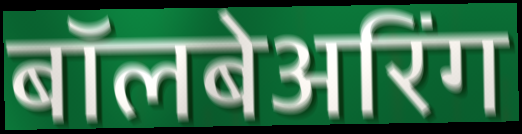
बॉलबेअरिंग